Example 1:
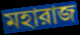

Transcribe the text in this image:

মহারাজ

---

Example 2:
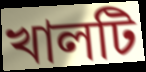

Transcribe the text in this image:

খালটি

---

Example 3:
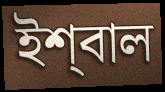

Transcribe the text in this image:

ইশ্‌বাল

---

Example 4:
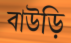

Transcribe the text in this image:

বাউড়ি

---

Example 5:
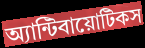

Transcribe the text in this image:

অ্যান্টিবায়োটিকস